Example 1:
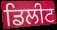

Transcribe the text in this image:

ਡਿਲੀਟ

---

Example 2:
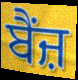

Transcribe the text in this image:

ਬੈਂਜ਼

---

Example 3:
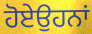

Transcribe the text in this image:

ਹੋਏਉਹਨਾਂ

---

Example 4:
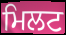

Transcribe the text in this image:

ਮਿਲਟ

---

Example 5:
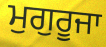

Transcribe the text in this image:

ਮੁਗੁਰੂਜਾ